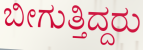
ಬೀಗುತ್ತಿದ್ದರು